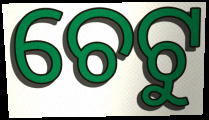
ଚେଟୁ